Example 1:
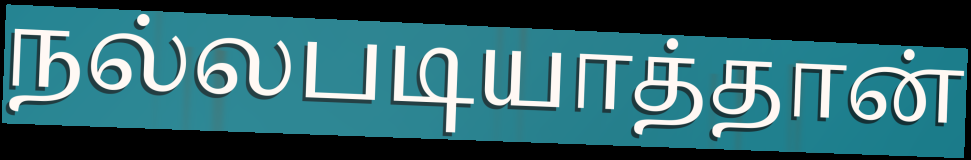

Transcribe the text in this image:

நல்லபடியாத்தான்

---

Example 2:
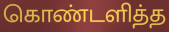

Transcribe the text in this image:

கொண்டளித்த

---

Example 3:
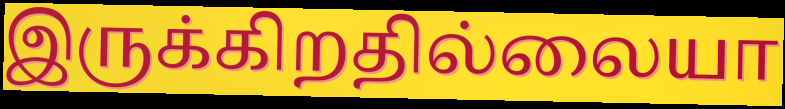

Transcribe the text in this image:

இருக்கிறதில்லையா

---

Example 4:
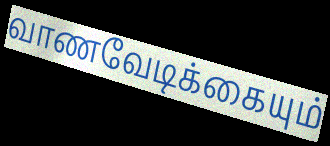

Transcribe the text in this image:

வாணவேடிக்கையும்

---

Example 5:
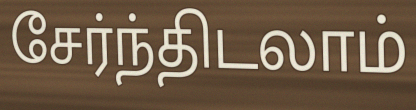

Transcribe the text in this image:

சேர்ந்திடலாம்